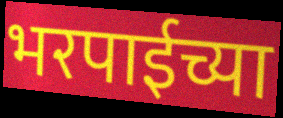
भरपाईच्या